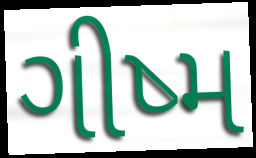
ગીષ્મ